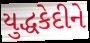
યુદ્ધકેદીને